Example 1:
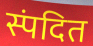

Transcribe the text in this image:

स्पंदित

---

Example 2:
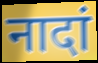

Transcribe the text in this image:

नादां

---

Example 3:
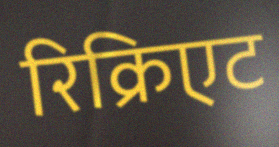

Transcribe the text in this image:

रिक्रिएट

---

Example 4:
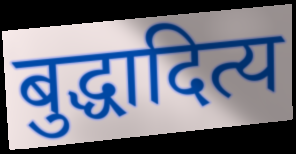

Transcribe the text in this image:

बुद्धादित्य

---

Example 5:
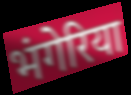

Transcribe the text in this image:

भंगेरिया